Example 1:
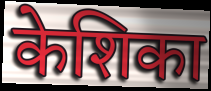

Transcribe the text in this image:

केशिका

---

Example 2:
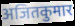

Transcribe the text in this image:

अजितकुमार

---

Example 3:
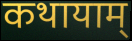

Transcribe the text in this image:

कथायाम्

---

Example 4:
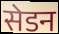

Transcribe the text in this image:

सेडन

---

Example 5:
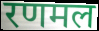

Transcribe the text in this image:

रणमल